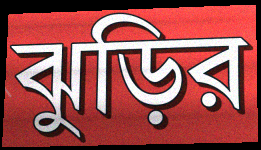
ঝুড়ির